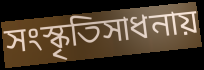
সংস্কৃতিসাধনায়